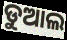
ଡୁଆଲ